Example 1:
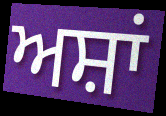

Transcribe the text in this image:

ਅਸ਼ਾਂ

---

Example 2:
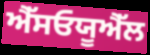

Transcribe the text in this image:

ਐੱਸਓਯੂਐੱਲ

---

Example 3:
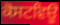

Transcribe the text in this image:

ਕੋਸਟਵਿਊ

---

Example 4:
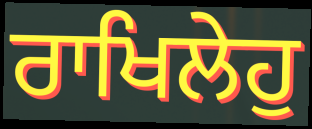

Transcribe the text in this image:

ਰਾਖਿਲੇਹੁ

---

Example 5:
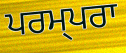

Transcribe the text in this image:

ਪਰਮ੍ਪਰਾ